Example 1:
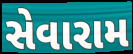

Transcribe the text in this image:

સેવારામ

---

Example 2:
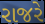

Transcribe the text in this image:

રાજરે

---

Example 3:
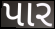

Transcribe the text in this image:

પાર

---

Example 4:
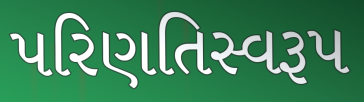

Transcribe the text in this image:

પરિણતિસ્વરૂપ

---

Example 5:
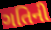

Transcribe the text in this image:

ગતિની